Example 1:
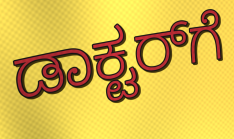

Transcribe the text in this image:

ಡಾಕ್ಟರ್‌ಗೆ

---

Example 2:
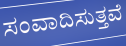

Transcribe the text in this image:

ಸಂವಾದಿಸುತ್ತವೆ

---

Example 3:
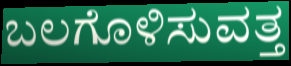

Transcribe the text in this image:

ಬಲಗೊಳಿಸುವತ್ತ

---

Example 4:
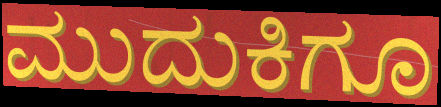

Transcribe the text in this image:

ಮುದುಕಿಗೂ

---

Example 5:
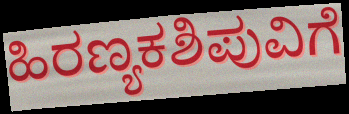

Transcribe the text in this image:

ಹಿರಣ್ಯಕಶಿಪುವಿಗೆ